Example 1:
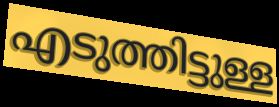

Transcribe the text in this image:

എടുത്തിട്ടുള്ള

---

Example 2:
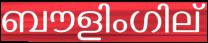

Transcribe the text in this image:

ബൗളിംഗില്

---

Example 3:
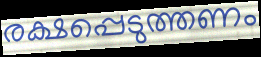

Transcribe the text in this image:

രക്ഷപ്പെടുത്തണം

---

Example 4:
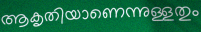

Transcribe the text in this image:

ആകൃതിയാണെന്നുള്ളതും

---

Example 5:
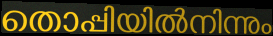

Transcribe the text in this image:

തൊപ്പിയിൽനിന്നും